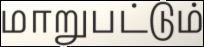
மாறுபட்டும்